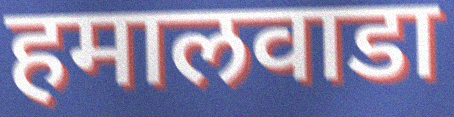
हमालवाडा